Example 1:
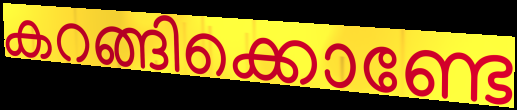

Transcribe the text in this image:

കറങ്ങിക്കൊണ്ടേ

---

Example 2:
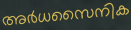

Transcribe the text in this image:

അർധസൈനിക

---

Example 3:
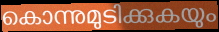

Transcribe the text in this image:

കൊന്നുമുടിക്കുകയും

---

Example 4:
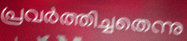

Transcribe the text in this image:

പ്രവർത്തിച്ചതെന്നു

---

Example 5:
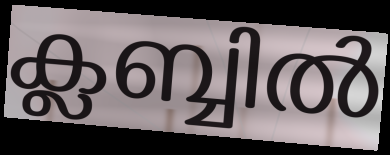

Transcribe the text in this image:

ക്ലബ്ബിൽ